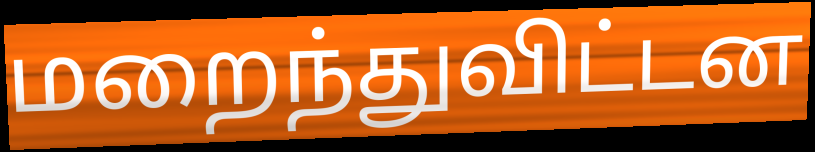
மறைந்துவிட்டன